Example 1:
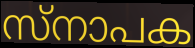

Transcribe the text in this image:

സ്നാപക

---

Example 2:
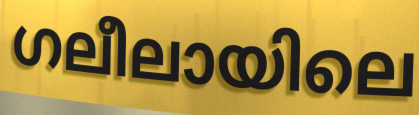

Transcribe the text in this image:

ഗലീലായിലെ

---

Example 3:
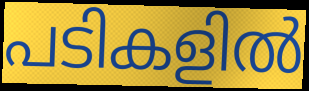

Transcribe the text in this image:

പടികളിൽ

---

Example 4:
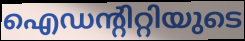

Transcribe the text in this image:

ഐഡന്റിറ്റിയുടെ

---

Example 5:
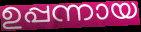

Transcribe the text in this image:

ഉപ്പന്നായ